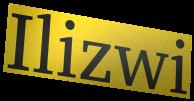
Ilizwi